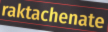
raktachenate